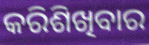
କରିଶିଖିବାର